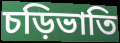
চড়িভাতি